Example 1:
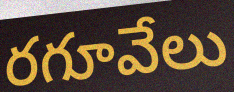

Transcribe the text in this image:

రగూవేలు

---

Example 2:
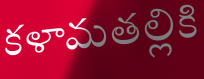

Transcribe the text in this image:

కళామతల్లికి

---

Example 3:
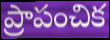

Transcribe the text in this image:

ప్రాపంచిక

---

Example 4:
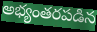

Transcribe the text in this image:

అభ్యంతరపడిన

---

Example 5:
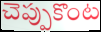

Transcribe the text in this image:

చెప్పుకొంట